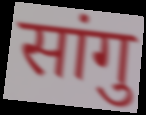
सांगु